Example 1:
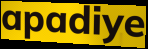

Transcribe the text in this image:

apadiye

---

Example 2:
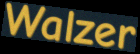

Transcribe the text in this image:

Walzer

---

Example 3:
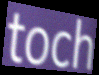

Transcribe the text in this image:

toch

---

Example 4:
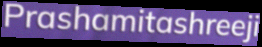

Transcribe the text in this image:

Prashamitashreeji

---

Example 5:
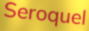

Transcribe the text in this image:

Seroquel